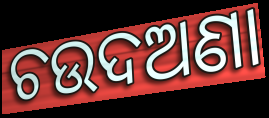
ଚଉଦଅଣା